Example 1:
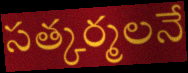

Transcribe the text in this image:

సత్కర్మలనే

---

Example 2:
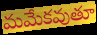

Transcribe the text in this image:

మమేకవుతూ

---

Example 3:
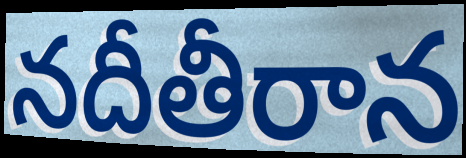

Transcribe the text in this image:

నదీతీరాన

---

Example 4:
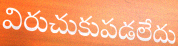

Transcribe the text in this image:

విరుచుకుపడలేదు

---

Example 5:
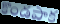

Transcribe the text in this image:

కొండపాక